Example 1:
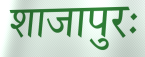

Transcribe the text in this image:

शाजापुरः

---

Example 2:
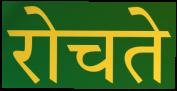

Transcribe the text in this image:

रोचते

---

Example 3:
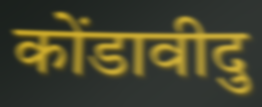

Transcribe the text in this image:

कोंडावीदु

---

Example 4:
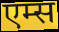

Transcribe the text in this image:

एम्‍स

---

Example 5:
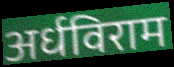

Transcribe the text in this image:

अर्धविराम